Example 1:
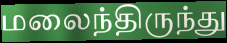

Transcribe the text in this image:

மலைந்திருந்து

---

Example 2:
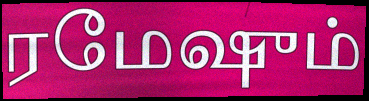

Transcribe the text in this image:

ரமேஷும்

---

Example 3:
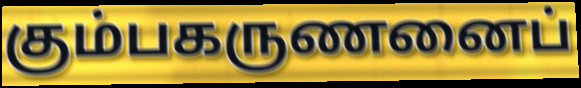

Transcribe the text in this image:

கும்பகருணனைப்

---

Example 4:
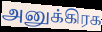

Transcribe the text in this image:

அனுக்கிரக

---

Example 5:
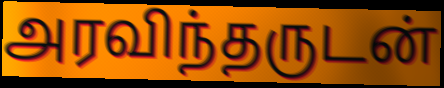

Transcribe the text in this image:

அரவிந்தருடன்